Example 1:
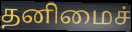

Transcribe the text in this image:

தனிமைச்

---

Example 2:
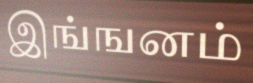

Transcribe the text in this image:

இங்ஙனம்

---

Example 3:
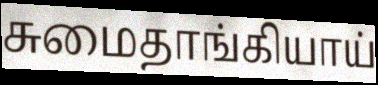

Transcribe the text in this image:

சுமைதாங்கியாய்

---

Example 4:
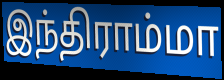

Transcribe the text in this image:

இந்திராம்மா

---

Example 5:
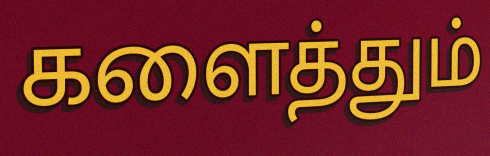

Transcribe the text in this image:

களைத்தும்